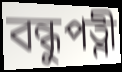
বন্ধুপত্নী